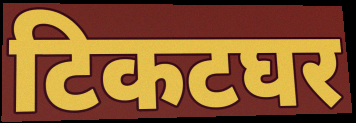
टिकटघर